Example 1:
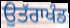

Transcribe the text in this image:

ਉਤੱਰਾਖੰਡ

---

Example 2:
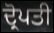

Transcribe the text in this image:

ਦ੍ਰੋਪਤੀ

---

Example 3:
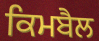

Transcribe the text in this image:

ਕਿਮਬੈਲ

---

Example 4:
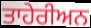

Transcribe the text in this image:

ਤਾਹੇਰੀਅਨ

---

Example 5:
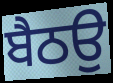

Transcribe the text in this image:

ਬੈਠਉ